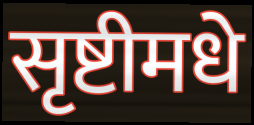
सृष्टीमधे